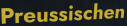
Preussischen